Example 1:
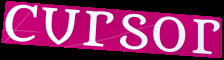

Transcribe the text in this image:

cursor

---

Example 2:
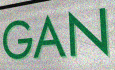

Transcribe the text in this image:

GAN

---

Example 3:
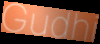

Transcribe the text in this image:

Gudhi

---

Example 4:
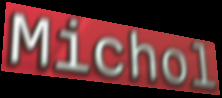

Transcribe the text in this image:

Michol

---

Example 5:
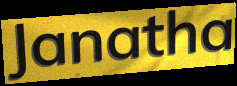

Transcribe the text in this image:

Janatha